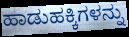
ಹಾಡುಹಕ್ಕಿಗಳನ್ನು